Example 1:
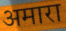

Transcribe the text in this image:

अमारा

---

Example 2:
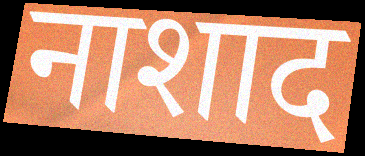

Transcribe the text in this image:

नाशाद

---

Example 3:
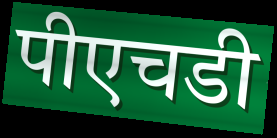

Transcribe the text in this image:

पीएचडी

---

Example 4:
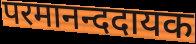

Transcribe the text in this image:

परमानन्ददायक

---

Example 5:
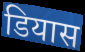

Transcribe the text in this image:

डियास